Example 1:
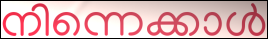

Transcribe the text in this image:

നിന്നെക്കാൾ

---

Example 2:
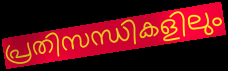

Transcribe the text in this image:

പ്രതിസന്ധികളിലും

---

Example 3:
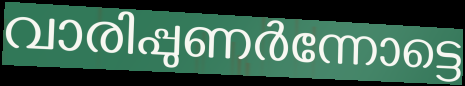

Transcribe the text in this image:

വാരിപ്പുണർന്നോട്ടെ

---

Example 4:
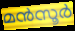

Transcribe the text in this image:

മൻസൂർ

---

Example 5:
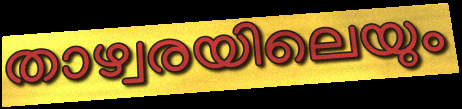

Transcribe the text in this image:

താഴ്വരയിലെയും